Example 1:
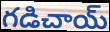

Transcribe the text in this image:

గడిచాయ్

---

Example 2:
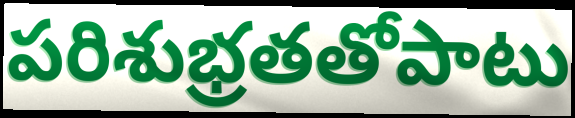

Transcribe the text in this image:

పరిశుభ్రతతోపాటు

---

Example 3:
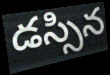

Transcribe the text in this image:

డస్సిన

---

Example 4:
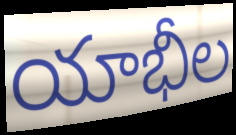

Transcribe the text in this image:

యాభీల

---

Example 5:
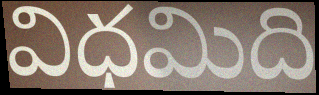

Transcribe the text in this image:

విధమిది